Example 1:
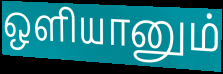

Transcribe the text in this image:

ஒளியானும்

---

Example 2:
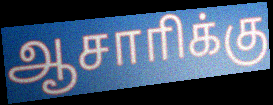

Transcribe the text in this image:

ஆசாரிக்கு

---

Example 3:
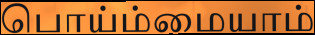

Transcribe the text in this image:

பொய்ம்மையாம்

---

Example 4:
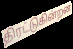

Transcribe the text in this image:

திரட்டுகின்றன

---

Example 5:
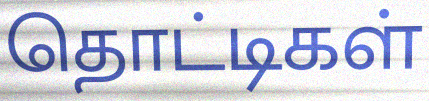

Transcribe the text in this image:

தொட்டிகள்